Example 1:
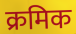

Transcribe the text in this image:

क्रमिक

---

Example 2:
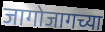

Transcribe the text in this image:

जागोजागच्या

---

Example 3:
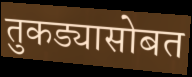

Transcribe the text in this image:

तुकड्यासोबत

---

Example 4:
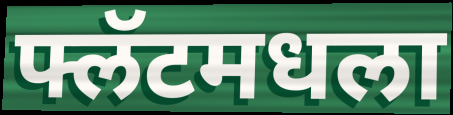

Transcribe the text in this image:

फ्लॅटमधला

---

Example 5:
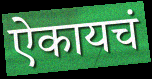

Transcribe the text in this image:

ऐकायचं